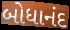
બોધાનંદ